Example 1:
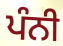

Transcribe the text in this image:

ਪੰਨੀ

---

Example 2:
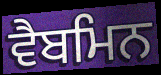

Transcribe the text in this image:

ਵੈਬਮਿਨ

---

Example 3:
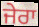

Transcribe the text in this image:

ਜੇਰਾ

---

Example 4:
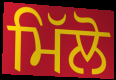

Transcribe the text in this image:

ਮਿੱਲੋ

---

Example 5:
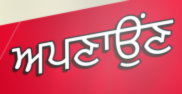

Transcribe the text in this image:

ਅਪਣਾਉਂਣ